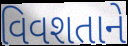
વિવશતાને